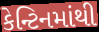
કેન્ટિનમાંથી